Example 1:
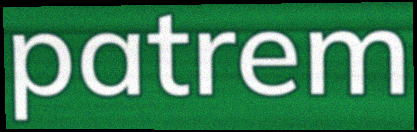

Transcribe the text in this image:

patrem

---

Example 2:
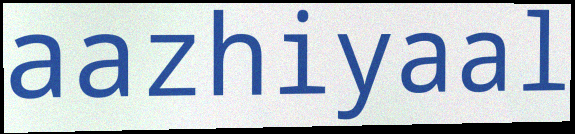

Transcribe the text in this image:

aazhiyaal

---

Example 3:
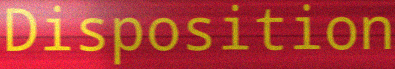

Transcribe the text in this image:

Disposition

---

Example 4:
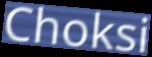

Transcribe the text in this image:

Choksi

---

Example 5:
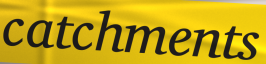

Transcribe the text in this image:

catchments